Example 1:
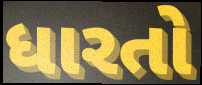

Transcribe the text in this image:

ધારતો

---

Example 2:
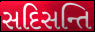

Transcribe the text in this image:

સદિસન્તિ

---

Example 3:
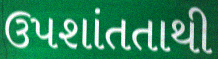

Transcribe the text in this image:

ઉપશાંતતાથી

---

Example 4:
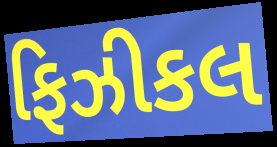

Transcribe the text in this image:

ફિઝીકલ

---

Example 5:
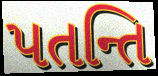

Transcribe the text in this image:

પતન્તિ